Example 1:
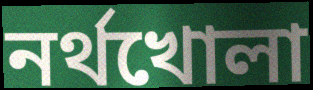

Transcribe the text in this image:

নর্থখোলা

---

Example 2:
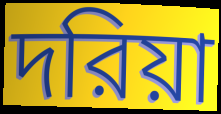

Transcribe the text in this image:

দরিয়া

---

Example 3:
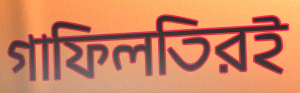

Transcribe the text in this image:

গাফিলতিরই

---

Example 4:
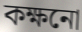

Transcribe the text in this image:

কক্ষনো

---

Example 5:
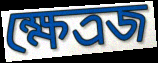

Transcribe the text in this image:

ক্ষেত্রজ